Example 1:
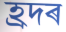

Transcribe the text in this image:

হ্ৰদৰ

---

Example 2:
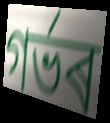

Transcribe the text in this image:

গৰ্ভৰ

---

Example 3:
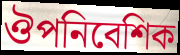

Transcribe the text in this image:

ঔপনিবেশিক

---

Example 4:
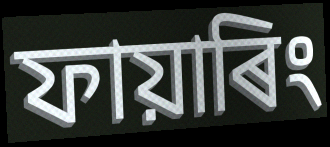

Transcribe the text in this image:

ফায়াৰিং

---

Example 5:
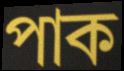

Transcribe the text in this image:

পাক